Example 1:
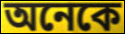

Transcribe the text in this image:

অনেকে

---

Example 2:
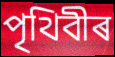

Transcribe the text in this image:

পৃথিবীৰ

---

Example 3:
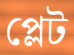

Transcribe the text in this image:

প্লেট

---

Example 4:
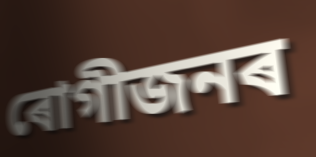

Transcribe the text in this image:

ৰোগীজনৰ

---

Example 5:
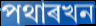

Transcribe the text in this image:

পথাৰখন